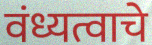
वंध्यत्वाचे